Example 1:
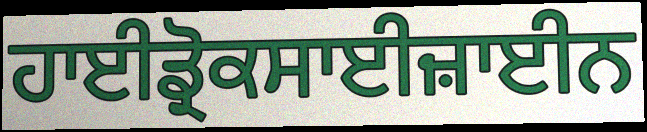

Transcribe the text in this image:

ਹਾਈਡ੍ਰੋਕਸਾਈਜ਼ਾਈਨ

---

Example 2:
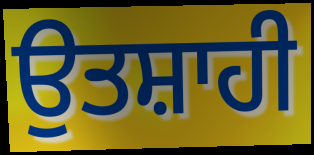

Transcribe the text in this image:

ਉਤਸ਼ਾਹੀ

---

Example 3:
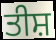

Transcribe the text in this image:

ਤੀਸ਼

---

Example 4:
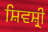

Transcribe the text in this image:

ਸ਼ਿਵਸ਼੍ਰੀ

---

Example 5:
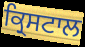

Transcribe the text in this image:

ਕ੍ਰਿਸਟਾਲ